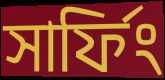
সার্ফিং